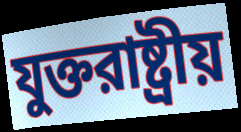
যুক্তরাষ্ট্রীয়